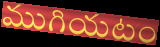
ముగియటం